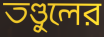
তণ্ডুলের